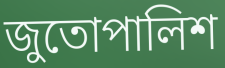
জুতোপালিশ